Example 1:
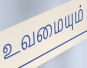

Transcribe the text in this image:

உவமையும்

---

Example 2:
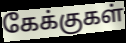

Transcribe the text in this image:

கேக்குகள்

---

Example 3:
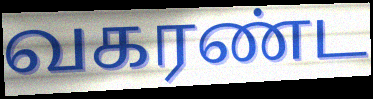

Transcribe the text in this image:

வகரண்ட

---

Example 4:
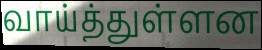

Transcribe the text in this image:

வாய்த்துள்ளன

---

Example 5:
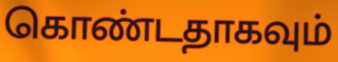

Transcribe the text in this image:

கொண்டதாகவும்